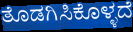
ತೊಡಗಿಸಿಕೊಳ್ಳದೆ